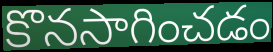
కొనసాగించడం